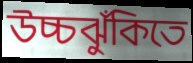
উচ্চঝুঁকিতে